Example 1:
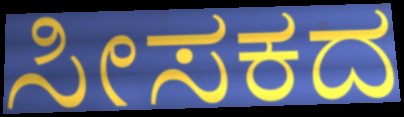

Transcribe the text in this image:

ಸೀಸಕದ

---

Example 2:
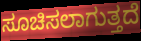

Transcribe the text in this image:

ಸೂಚಿಸಲಾಗುತ್ತದೆ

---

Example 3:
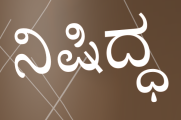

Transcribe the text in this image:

ನಿಷಿದ್ಧ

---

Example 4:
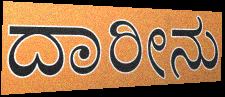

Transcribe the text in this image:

ದಾರೀನು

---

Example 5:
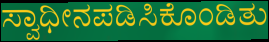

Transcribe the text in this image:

ಸ್ವಾಧೀನಪಡಿಸಿಕೊಂಡಿತು